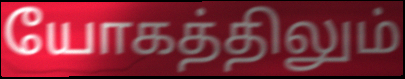
யோகத்திலும்